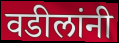
वडीलांनी